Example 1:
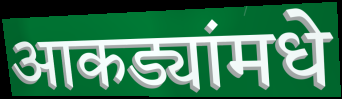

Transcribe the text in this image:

आकड्यांमधे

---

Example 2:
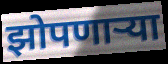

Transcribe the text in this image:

झोपणाऱ्या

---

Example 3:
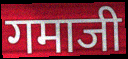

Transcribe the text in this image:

गमाजी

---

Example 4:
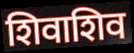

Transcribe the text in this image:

शिवाशिव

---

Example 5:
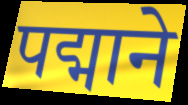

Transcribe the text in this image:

पद्माने